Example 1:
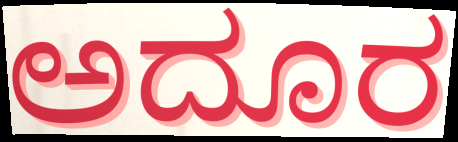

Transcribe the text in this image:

ಅದೂರ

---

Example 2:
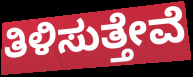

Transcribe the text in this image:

ತಿಳಿಸುತ್ತೇವೆ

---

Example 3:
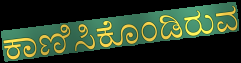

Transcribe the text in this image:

ಕಾಣಿಸಿಕೊಂಡಿರುವ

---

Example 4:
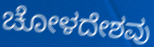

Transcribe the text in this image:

ಚೋಳದೇಶವು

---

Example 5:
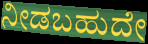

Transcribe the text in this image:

ನೀಡಬಹುದೇ